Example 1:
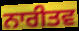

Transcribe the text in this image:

ਨਾਰੀਤਵ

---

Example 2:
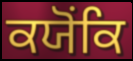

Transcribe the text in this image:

ਕਯੋਂਕਿ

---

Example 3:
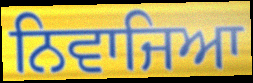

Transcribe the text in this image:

ਨਿਵਾਜਿਆ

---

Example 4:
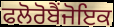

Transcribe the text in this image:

ਫਲੋਰੋਬੈਂਜੋਇਕ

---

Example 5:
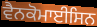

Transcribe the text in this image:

ਵੈਨਕੋਮਾਈਸਿਨ